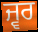
ਜ੍ਵਰ